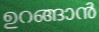
ഉറങ്ങാൻ